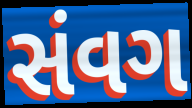
સંવગ